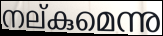
നല്‌കുമെന്നു